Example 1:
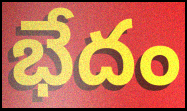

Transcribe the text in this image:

భేదం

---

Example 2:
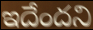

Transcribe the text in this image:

ఇదేందని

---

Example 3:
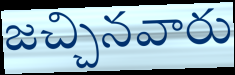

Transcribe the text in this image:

జచ్చినవారు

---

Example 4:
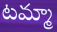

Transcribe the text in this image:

టమ్మా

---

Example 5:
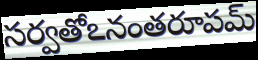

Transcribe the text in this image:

సర్వతోఽనంతరూపమ్